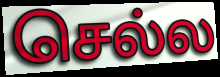
செல்ல